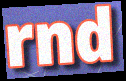
rnd